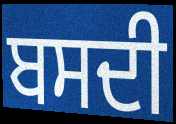
ਬਸਦੀ